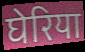
घेरिया